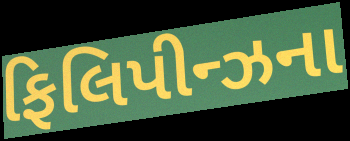
ફિલિપીન્ઝના